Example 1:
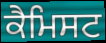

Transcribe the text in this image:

ਕੈਮਿਸਟ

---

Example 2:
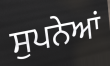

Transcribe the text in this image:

ਸੁਪਨੇਆਂ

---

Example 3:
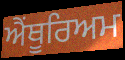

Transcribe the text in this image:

ਐਂਥੂਰਿਅਮ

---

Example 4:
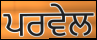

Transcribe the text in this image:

ਪਰਵੇਲ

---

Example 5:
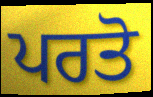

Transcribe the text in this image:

ਪਰਤੋ